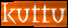
kuttu